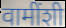
वामींशी